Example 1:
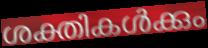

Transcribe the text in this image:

ശക്തികൾക്കും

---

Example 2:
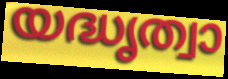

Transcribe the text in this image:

യദ്ധൃത്വാ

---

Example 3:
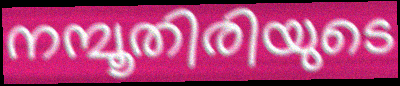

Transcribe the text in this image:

നമ്പൂതിരിയുടെ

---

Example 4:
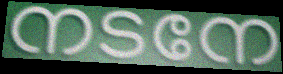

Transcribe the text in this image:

നടനേ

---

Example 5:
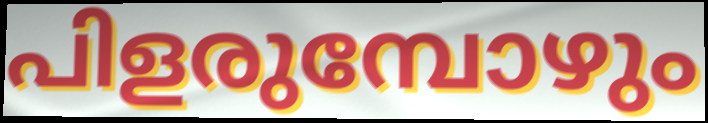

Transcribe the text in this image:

പിളരുമ്പോഴും